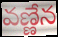
వణ్ణేన